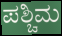
ಪಶ್ಚಿಮ